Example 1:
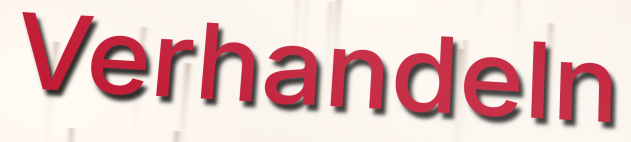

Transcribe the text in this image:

Verhandeln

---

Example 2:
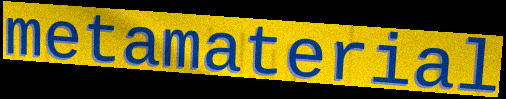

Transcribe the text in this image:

metamaterial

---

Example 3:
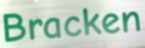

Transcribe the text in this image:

Bracken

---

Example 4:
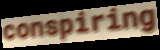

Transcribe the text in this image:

conspiring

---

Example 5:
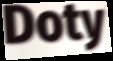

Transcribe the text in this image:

Doty